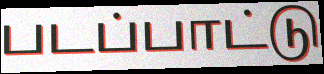
படப்பாட்டு